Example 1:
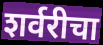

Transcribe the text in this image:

शर्वरीचा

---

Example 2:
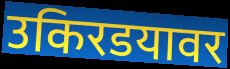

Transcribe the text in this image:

उकिरडयावर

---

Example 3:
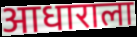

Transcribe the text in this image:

आधाराला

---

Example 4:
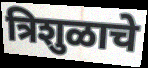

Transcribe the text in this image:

त्रिशुळाचे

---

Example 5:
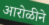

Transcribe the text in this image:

आरोळीने